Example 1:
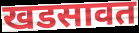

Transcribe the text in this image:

खडसावत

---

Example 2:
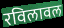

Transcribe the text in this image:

रविलावल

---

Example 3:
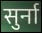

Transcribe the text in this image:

सुर्ना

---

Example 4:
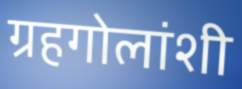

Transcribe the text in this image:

ग्रहगोलांशी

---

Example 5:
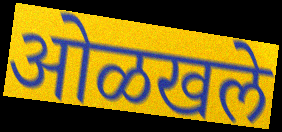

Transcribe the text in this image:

ओळखले